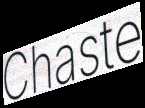
Chaste